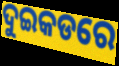
ଦୁଇକଡରେ